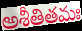
అశీతితమః